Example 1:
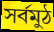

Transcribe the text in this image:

সৰ্বমুঠ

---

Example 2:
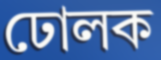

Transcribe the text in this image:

ঢোলক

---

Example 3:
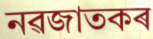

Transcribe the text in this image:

নৱজাতকৰ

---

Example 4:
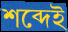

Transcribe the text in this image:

শব্দেই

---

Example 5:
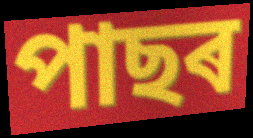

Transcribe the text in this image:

পাছৰ